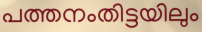
പത്തനംതിട്ടയിലും